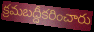
క్రమబద్దీకరించారు